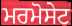
ਮਰਮੋਸੇਟ